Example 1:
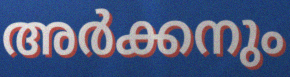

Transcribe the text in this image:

അർക്കനും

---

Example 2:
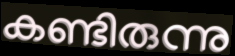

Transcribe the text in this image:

കണ്ടിരുന്നു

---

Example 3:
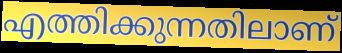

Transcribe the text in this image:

എത്തിക്കുന്നതിലാണ്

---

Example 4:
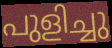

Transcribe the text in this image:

പുളിച്ചു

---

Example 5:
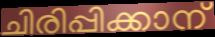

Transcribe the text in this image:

ചിരിപ്പിക്കാന്